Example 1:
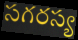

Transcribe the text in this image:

సగరస్య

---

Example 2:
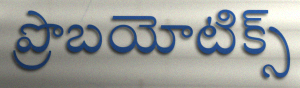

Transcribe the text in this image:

ప్రొబయోటిక్స్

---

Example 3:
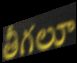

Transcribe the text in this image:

తీగలూ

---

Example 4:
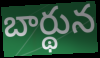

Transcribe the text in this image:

బార్థున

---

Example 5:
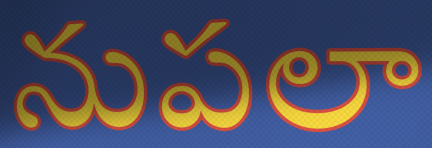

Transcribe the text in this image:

నుపలా